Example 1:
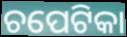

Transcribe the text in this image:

ଚପେଟିକା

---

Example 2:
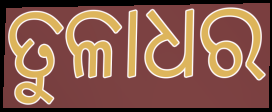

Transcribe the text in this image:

ତୁଳାଧର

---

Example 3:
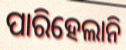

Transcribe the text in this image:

ପାରିହେଲାନି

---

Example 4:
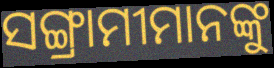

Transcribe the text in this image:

ସଙ୍ଗ୍ରାମୀମାନଙ୍କୁ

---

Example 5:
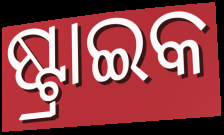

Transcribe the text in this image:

ଷ୍ଟ୍ରାଇକ